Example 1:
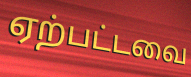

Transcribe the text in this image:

ஏற்பட்டவை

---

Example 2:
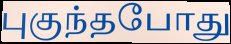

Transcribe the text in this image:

புகுந்தபோது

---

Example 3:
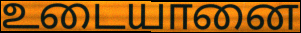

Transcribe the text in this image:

உடையானை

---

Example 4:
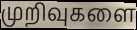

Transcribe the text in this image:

முறிவுகளை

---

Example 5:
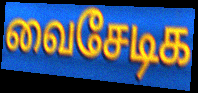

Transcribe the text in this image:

வைசேடிக